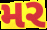
મર